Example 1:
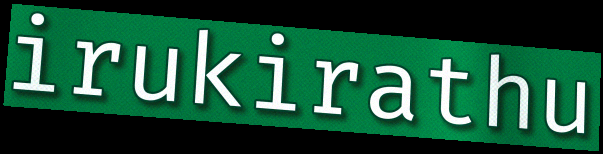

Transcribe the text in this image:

irukirathu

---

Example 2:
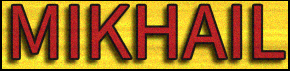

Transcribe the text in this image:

MIKHAIL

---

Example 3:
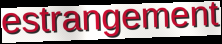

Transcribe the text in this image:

estrangement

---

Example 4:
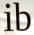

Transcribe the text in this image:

ib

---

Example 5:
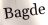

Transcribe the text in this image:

Bagde